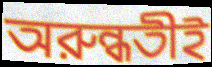
অরুন্ধতীই